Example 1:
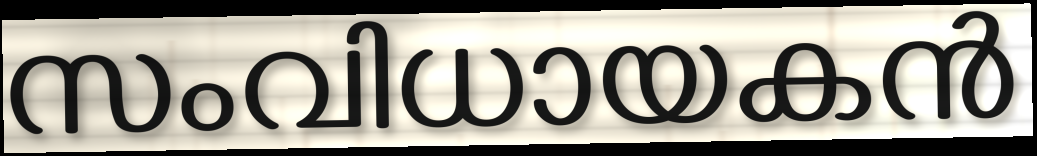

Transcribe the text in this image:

സംവിധായകൻ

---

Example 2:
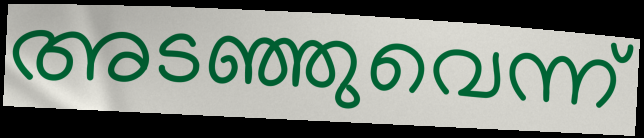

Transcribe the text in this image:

അടഞ്ഞുവെന്ന്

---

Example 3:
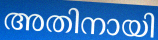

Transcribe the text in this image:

അതിനായി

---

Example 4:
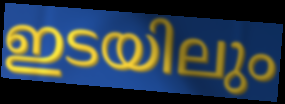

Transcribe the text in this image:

ഇടയിലും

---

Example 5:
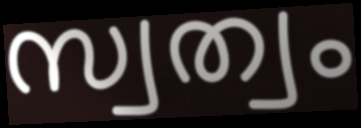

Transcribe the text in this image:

സ്വത്വം